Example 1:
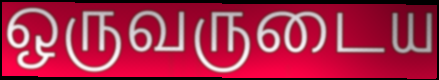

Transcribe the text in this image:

ஒருவருடைய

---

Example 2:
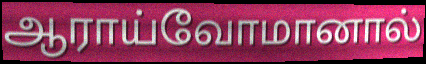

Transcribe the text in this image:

ஆராய்வோமானால்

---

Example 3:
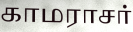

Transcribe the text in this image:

காமராசர்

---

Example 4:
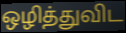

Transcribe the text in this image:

ஒழித்துவிட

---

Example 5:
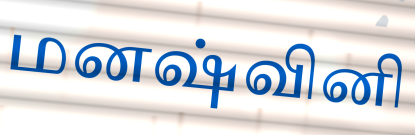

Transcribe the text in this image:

மனஷ்வினி